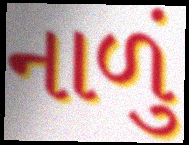
નાળું